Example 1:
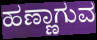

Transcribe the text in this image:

ಹಣ್ಣಾಗುವ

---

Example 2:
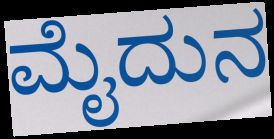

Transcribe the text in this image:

ಮೈದುನ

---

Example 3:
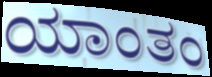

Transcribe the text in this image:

ಯಾಂತಂ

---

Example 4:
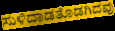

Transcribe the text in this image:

ಸುಳಿದಾಡತೊಡಗಿದವು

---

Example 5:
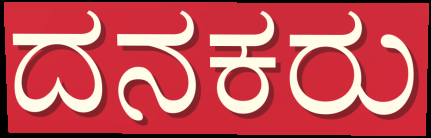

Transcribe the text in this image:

ದನಕರು